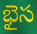
భైస